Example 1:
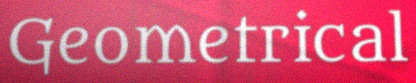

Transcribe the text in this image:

Geometrical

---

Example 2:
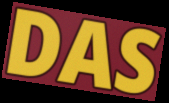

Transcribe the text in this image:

DAS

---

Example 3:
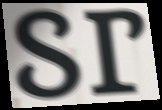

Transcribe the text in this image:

sr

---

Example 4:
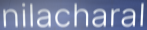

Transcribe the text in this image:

nilacharal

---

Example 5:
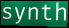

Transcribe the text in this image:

synth